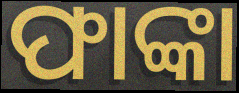
ଫାଙ୍କା